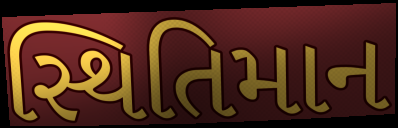
સ્થિતિમાન